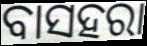
ବାସହରା